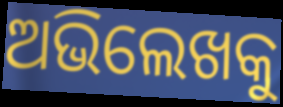
ଅଭିଲେଖକୁ